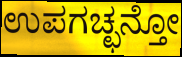
ಉಪಗಚ್ಛನ್ತೋ